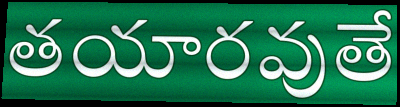
తయారవుతే